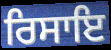
ਰਿਸਾਇ